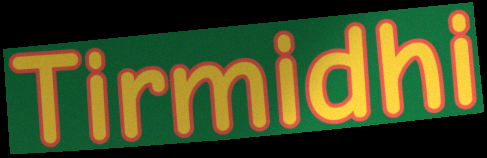
Tirmidhi